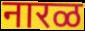
नारळ